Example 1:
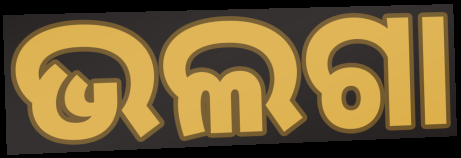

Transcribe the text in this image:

ଭଲଗା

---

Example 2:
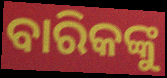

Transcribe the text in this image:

ବାରିକଙ୍କୁ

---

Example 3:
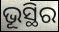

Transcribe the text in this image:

ଭୂସ୍ଥିର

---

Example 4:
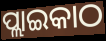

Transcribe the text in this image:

ପ୍ଲାଇକାଠ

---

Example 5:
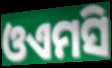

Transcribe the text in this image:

ଓଏମସି